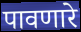
पावणारे